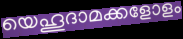
യെഹൂദാമക്കളോളം